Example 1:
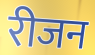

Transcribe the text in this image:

रीजन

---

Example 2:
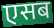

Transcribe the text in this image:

एसब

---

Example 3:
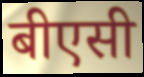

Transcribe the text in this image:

बीएसी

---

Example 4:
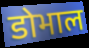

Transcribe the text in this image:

डोभाल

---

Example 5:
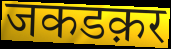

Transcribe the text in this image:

जकडक़र